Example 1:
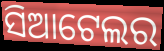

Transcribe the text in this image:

ସିଆଟେଲର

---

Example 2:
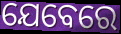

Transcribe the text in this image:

ଯେବେରେ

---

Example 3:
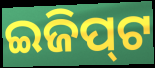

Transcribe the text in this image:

ଇଜିପ୍‍ଟ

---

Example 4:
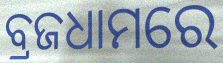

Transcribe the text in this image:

ବ୍ରଜଧାମରେ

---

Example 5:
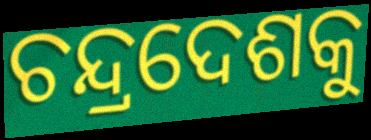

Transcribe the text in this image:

ଚନ୍ଦ୍ରଦେଶକୁ